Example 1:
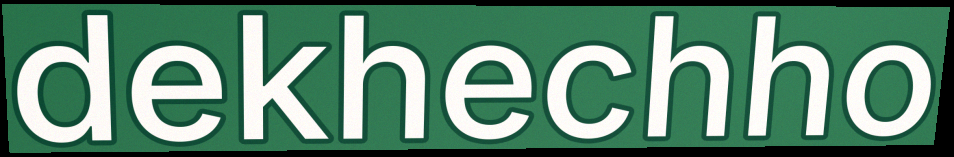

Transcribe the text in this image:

dekhechho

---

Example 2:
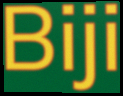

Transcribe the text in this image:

Biji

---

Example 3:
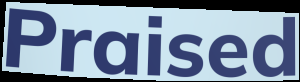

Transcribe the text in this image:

Praised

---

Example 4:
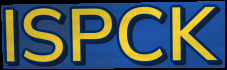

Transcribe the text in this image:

ISPCK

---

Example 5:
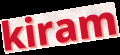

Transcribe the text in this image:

kiram